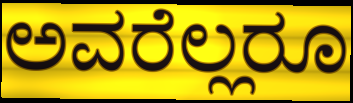
ಅವರೆಲ್ಲರೂ